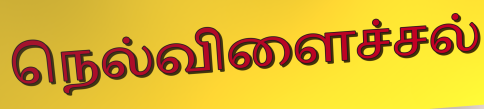
நெல்விளைச்சல்